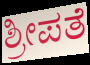
ಶ್ರೀಪತೆ